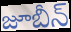
జూబీన్